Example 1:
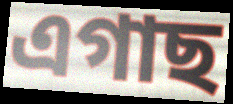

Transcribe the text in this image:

এগাছ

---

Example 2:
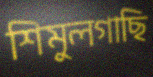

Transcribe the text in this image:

শিমুলগাছি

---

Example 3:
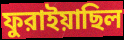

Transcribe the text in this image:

ফুরাইয়াছিল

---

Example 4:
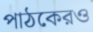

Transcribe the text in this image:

পাঠকেরও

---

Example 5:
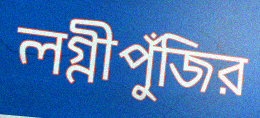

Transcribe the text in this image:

লগ্নীপুঁজির